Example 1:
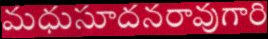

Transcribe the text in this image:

మధుసూదనరావుగారి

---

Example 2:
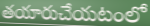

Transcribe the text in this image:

తయారుచేయటంలో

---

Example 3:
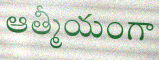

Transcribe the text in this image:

ఆత్మీయంగా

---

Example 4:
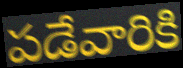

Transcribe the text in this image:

పడేవారికి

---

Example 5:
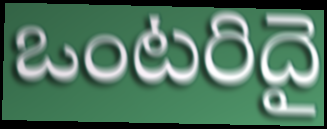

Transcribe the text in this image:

ఒంటరిదై